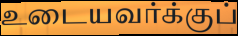
உடையவர்க்குப்